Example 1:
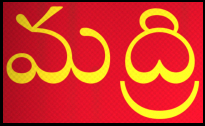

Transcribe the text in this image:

మద్రి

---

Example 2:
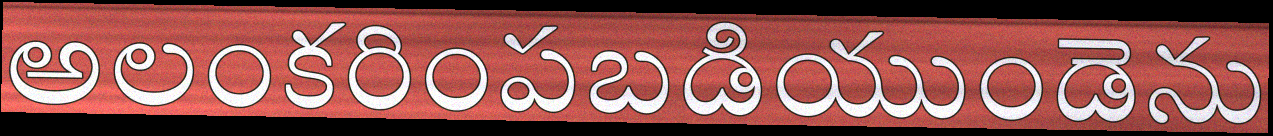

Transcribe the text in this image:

అలంకరింపబడియుండెను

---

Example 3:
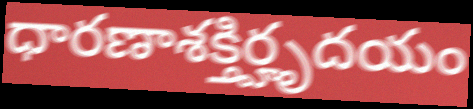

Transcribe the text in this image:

ధారణాశక్తిర్హృదయం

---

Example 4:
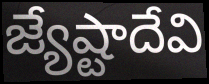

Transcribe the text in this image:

జ్యేష్టాదేవి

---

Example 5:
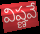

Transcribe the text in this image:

విష్ణవే